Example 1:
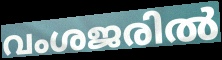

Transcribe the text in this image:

വംശജരിൽ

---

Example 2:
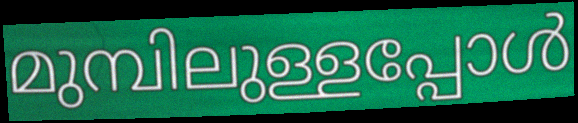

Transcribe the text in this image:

മുമ്പിലുള്ളപ്പോൾ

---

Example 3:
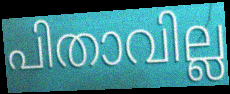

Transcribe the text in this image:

പിതാവില്ല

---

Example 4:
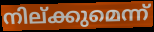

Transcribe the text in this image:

നില്ക്കുമെന്ന്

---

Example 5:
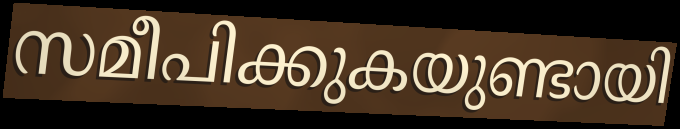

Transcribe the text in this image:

സമീപിക്കുകയുണ്ടായി